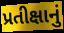
પ્રતીક્ષાનું